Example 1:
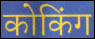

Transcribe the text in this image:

कोकिंग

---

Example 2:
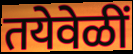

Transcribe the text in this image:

तयेवेळीं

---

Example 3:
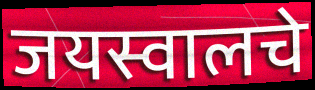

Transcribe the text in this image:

जयस्वालचे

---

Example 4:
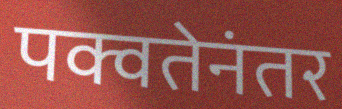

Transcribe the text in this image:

पक्वतेनंतर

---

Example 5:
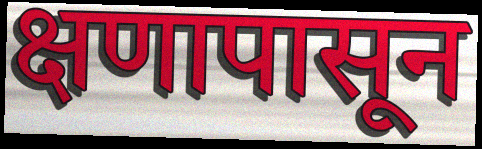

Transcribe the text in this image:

क्षणापासून